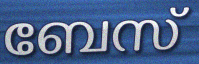
ബേസ്